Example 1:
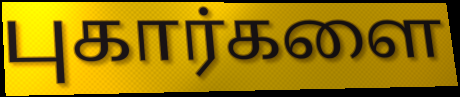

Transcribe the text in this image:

புகார்களை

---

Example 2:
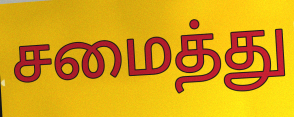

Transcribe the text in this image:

சமைத்து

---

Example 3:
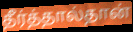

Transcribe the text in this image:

தீர்த்தால்தான்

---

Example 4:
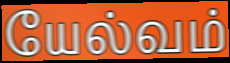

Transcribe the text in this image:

யேல்வம்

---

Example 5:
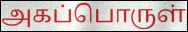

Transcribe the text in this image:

அகப்பொருள்